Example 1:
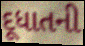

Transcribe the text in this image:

દૂધાતની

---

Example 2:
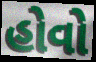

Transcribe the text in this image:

હોવો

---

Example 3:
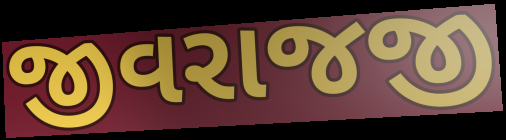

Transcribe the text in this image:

જીવરાજજી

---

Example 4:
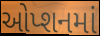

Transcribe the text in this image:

ઓપ્શનમાં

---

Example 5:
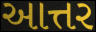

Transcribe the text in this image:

આત્તર